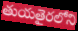
తుయతైరలోని